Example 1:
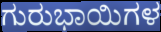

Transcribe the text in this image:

ಗುರುಭಾಯಿಗಳ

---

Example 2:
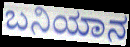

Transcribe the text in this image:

ಬನಿಯಾನ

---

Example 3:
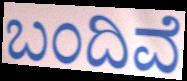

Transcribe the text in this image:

ಬಂದಿವೆ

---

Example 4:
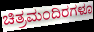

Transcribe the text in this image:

ಚಿತ್ರಮಂದಿರಗಳೂ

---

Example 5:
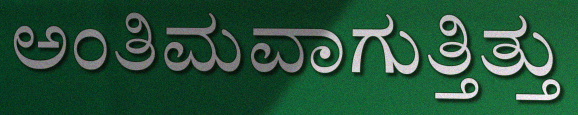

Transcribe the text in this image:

ಅಂತಿಮವಾಗುತ್ತಿತ್ತು